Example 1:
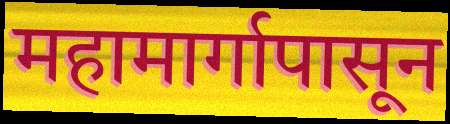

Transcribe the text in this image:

महामार्गापासून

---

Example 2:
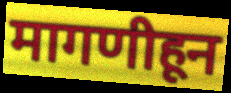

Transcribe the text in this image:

मागणीहून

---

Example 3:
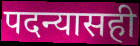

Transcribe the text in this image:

पदन्यासही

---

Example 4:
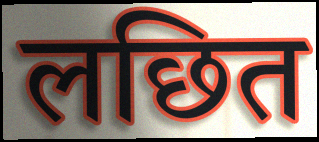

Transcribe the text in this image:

लछित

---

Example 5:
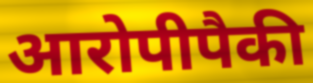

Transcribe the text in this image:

आरोपीपैकी